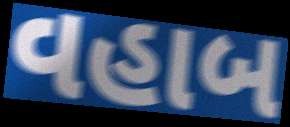
વહાબ